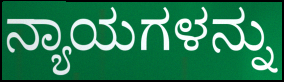
ನ್ಯಾಯಗಳನ್ನು